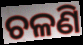
ଚଳଣି